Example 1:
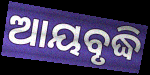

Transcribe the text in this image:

ଆୟବୃଦ୍ଧି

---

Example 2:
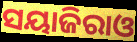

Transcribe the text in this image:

ସୟାଜିରାଓ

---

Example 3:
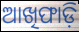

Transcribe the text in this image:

ଆଖିଫାଡ଼ି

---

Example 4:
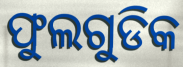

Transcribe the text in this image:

ଫୁଲଗୁଡିକ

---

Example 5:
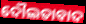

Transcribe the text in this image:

ଦୌଲତାବାଦ